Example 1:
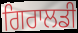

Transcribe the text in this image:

ਗਿਰਾਲਡੀ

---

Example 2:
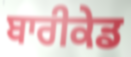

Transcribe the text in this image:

ਬਾਰੀਕੇਡ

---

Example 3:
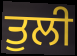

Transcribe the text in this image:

ਤੁਲੀ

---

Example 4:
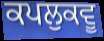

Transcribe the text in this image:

ਕਪਲੁਕਵੂ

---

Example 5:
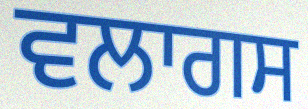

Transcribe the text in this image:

ਵਲਾਗਸ